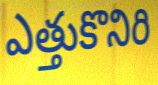
ఎత్తుకొనిరి